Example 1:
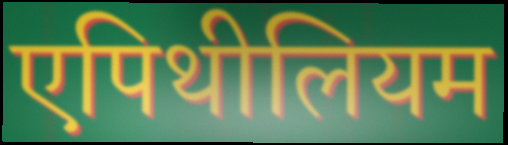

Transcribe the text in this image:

एपिथीलियम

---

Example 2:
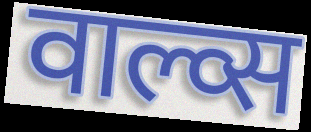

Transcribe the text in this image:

वाल्व्स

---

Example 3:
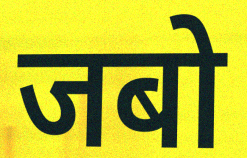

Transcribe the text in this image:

जबो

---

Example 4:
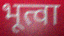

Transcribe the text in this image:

भूत्वा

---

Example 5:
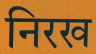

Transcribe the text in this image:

निरख